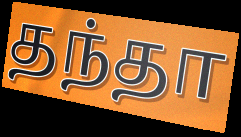
தந்தா